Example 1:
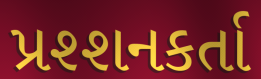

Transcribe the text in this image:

પ્રશ્શનકર્તા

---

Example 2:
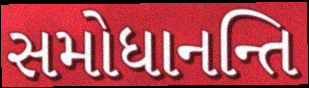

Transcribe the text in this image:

સમોધાનન્તિ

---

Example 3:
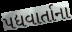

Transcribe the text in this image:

પદ્યવાર્તાના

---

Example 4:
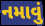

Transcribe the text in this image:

નમાવું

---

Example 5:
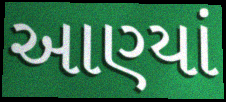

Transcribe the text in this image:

આણ્યાં